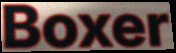
Boxer